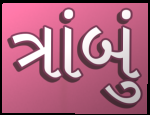
ત્રાંબું